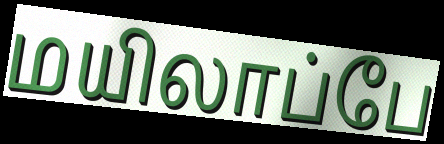
மயிலாப்பே